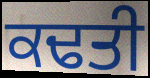
ਕਢਤੀ